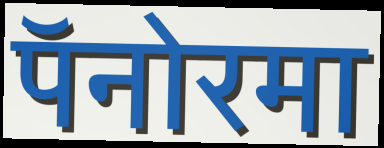
पॅनोरमा